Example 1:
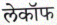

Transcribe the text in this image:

लेकॉफ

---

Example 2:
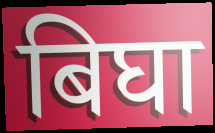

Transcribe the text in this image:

बिघा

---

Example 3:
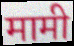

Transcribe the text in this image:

मामी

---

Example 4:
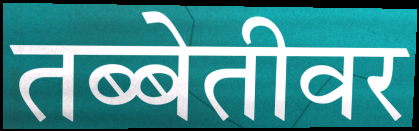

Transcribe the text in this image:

तब्बेतीवर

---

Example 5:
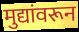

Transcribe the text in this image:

मुद्यांवरून